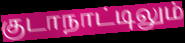
குடாநாட்டிலும்